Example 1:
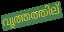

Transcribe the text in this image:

വൃത്തത്തില്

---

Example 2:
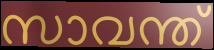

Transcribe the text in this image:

സാവന്ത്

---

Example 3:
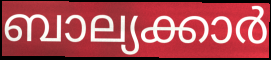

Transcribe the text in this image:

ബാല്യക്കാർ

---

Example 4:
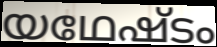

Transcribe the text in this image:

യഥേഷ്ടം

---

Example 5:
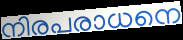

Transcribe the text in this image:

നിരപരാധനെ